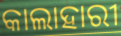
କାଲାହାରୀ